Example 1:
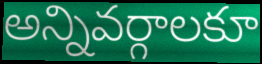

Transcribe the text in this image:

అన్నివర్గాలకూ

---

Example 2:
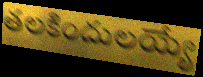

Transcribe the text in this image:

తలకిందులయ్యే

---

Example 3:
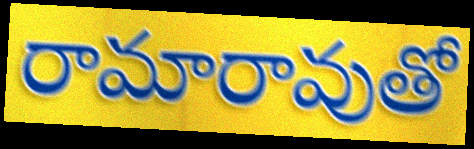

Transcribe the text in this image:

రామారావుతో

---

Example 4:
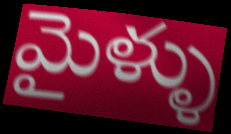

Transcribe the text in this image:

మైళ్ళు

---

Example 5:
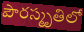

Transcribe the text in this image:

పౌరస్మృతిలో